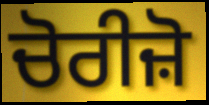
ਚੋਰੀਜ਼ੋ